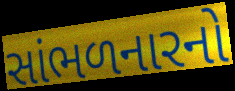
સાંભળનારનો